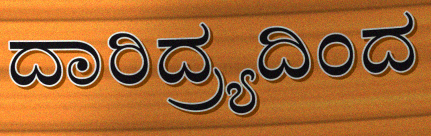
ದಾರಿದ್ರ್ಯದಿಂದ